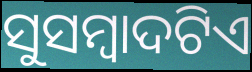
ସୁସମ୍ବାଦଟିଏ